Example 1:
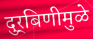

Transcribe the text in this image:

दुर्बिणीमुळे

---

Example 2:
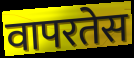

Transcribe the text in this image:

वापरतेस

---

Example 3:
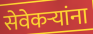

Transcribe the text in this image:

सेवेकऱ्यांना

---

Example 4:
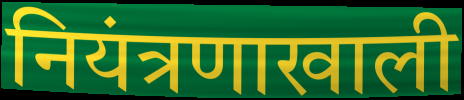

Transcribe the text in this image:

नियंत्रणाखाली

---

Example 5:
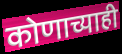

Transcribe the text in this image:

कोणाच्याही